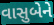
વાસુબેને